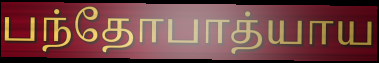
பந்தோபாத்யாய